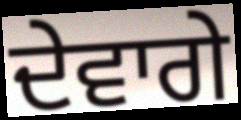
ਦੇਵਾਗੇ